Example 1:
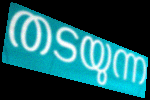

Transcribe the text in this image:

തടയുന്ന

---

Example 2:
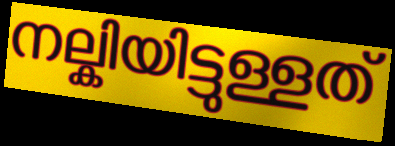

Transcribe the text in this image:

നല്കിയിട്ടുള്ളത്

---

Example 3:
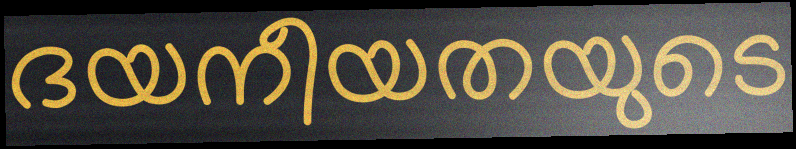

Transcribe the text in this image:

ദയനീയതയുടെ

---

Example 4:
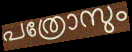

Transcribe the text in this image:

പത്രോസും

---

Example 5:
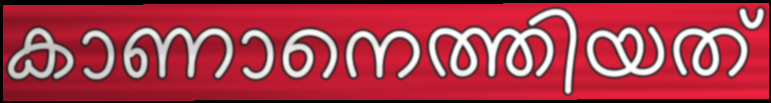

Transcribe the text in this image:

കാണാനെത്തിയത്